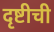
दृष्टीची